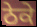
ਠੇਕੇ